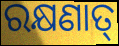
ରକ୍ଷଣାତ୍